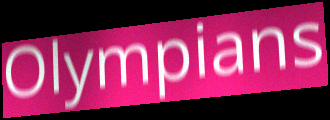
Olympians